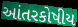
આંતરકોષીય